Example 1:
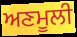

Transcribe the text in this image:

ਅਣਮੂਲੀ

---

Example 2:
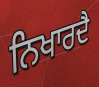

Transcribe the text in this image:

ਨਿਖਾਰਦੈ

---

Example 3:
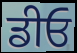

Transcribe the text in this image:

ਡੀਓ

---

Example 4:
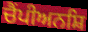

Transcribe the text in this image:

ਚੈਂਪੀਅਨਸ਼ਿ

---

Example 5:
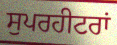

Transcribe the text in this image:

ਸੁਪਰਹੀਟਰਾਂ